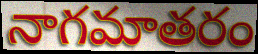
నాగమాతరం